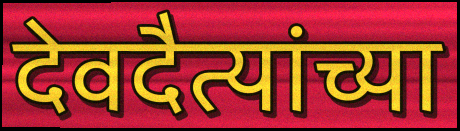
देवदैत्यांच्या